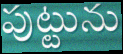
పుట్టును